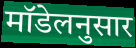
मॉडेलनुसार